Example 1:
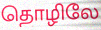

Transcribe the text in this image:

தொழிலே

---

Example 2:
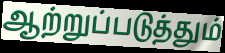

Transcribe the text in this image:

ஆற்றுப்படுத்தும்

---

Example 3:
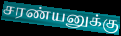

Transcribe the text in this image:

சரண்யனுக்கு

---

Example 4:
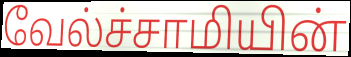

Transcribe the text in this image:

வேல்ச்சாமியின்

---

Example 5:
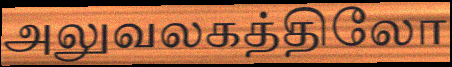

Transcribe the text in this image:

அலுவலகத்திலோ